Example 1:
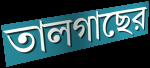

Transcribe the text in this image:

তালগাছের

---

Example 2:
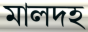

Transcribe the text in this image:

মালদহ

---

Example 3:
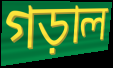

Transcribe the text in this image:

গড়াল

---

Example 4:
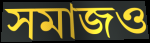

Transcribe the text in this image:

সমাজও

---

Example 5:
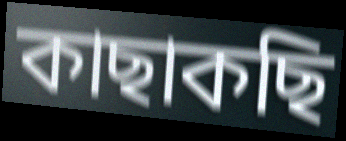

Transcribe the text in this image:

কাছাকছি